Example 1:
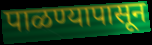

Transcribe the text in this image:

पाळण्यापासून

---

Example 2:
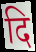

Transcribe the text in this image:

दि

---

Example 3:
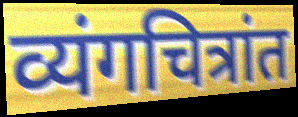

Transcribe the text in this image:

व्यंगचित्रांत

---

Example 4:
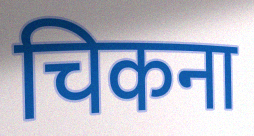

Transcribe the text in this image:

चिकना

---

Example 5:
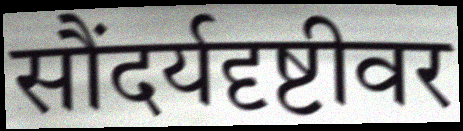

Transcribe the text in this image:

सौंदर्यदृष्टीवर